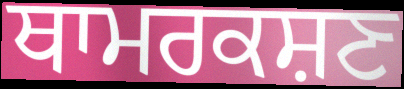
ਥਾਮਰਕਸ਼ਣ